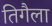
तिगैला